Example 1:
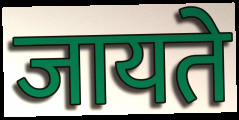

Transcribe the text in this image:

जायते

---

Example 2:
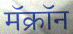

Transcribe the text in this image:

मॅक्रॉन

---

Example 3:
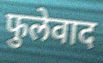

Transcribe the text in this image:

फुलेवाद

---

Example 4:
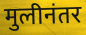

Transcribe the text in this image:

मुलीनंतर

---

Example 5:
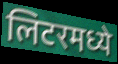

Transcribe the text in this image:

लिटरमध्ये